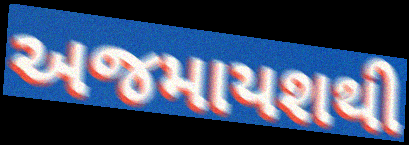
અજમાયશથી